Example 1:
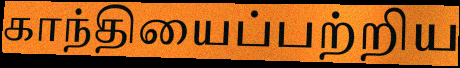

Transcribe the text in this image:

காந்தியைப்பற்றிய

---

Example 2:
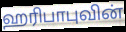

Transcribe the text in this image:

ஹரிபாபுவின்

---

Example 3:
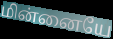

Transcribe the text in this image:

மின்னையே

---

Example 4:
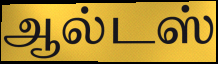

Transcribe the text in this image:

ஆல்டஸ்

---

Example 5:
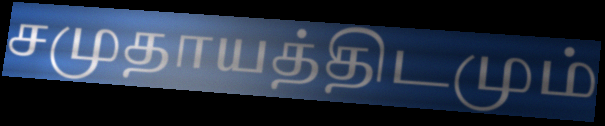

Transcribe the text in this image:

சமுதாயத்திடமும்